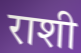
राशी